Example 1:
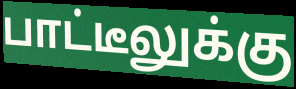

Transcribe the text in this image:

பாட்டீலுக்கு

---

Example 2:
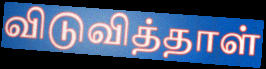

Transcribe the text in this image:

விடுவித்தாள்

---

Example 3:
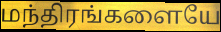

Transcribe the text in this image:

மந்திரங்களையே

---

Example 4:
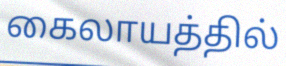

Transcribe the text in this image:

கைலாயத்தில்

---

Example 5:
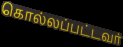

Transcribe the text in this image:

கொல்லப்பட்டவர்